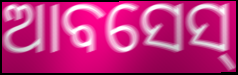
ଆବସେସ୍